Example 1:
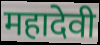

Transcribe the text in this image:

महादेवी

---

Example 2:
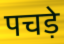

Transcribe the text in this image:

पचड़े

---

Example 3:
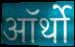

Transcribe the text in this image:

ऑर्थो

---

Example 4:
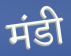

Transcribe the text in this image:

मंडी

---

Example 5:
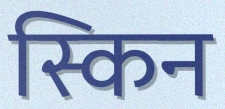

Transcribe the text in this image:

स्‍किन